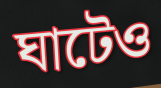
ঘাটেও